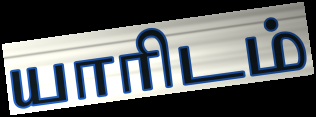
யாரிடம்